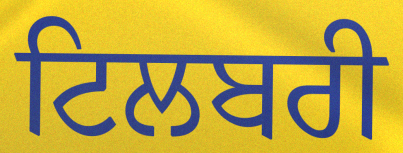
ਟਿਲਬਰੀ